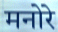
मनोरे